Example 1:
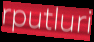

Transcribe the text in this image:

rputluri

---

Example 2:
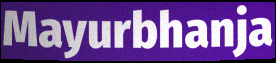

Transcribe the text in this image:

Mayurbhanja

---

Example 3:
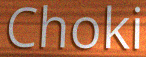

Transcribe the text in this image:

Choki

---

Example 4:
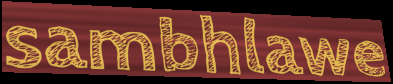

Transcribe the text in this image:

sambhlawe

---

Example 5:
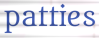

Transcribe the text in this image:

patties